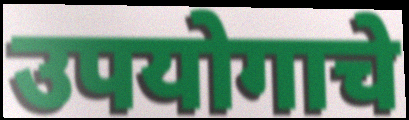
उपयोगाचे